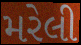
મરેલી